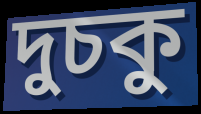
দুচকু